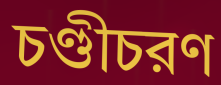
চণ্ডীচরণ